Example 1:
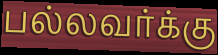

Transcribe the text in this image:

பல்லவர்க்கு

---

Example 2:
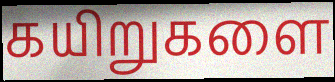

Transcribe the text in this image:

கயிறுகளை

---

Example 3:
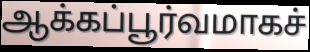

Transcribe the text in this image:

ஆக்கப்பூர்வமாகச்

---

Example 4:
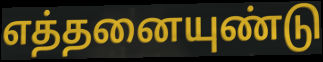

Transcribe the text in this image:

எத்தனையுண்டு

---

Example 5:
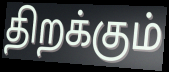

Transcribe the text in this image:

திறக்கும்